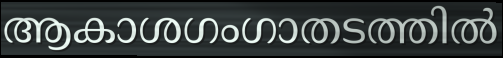
ആകാശഗംഗാതടത്തിൽ